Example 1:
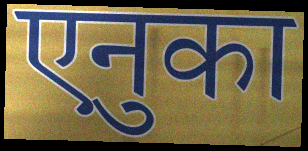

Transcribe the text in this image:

एनुका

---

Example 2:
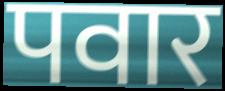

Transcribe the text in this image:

पवार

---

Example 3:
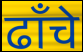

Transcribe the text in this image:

ढाँचे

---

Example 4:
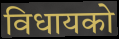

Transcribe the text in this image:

विधायको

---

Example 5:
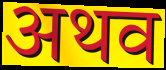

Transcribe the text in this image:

अथव